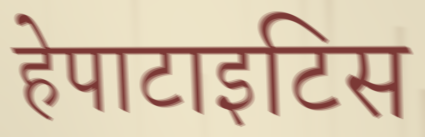
हेपाटाइटिस